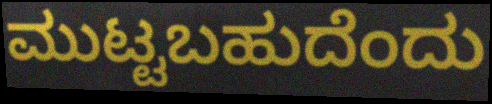
ಮುಟ್ಟಬಹುದೆಂದು